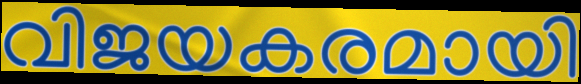
വിജയകരമായി